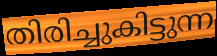
തിരിച്ചുകിട്ടുന്ന